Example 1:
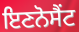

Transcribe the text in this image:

ਇਣਨੋਸੈਂਟ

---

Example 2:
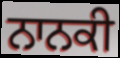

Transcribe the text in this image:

ਨਾਨਕੀ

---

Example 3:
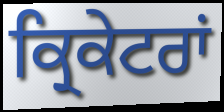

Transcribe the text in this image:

ਕ੍ਰਿਕੇਟਰਾਂ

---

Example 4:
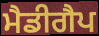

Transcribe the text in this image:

ਮੈਡੀਗੈਪ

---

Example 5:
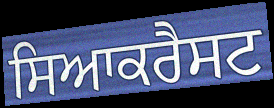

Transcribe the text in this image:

ਸਿਆਕਰੈਸਟ